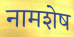
नामशेष